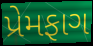
પ્રેમફાગ